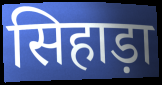
सिहाड़ा